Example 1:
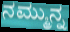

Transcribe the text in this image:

ನಮ್ಮುನ್ನ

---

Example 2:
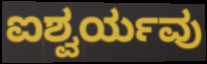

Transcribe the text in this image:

ಐಶ್ವರ್ಯವು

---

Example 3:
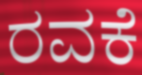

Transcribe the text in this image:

ರವಕೆ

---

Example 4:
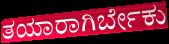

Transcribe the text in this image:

ತಯಾರಾಗಿರ್ಬೇಕು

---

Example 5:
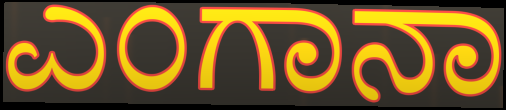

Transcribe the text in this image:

ಎಂಗಾನಾ